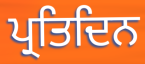
ਪ੍ਰਤਿਦਿਨ